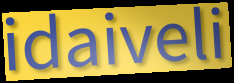
idaiveli